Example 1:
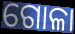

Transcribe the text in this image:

ଗୋଳା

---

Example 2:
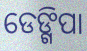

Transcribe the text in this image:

ଡେଙ୍ଗିପା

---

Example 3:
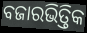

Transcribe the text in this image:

ବଜାରଭିତ୍ତିକ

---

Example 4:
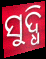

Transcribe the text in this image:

ସୁଦ୍ଧି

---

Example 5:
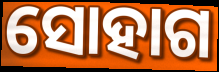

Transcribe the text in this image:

ସୋହାଗ